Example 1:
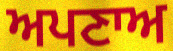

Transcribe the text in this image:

ਅਪਣਾਅ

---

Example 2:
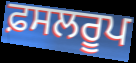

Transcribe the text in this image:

ਫ਼ਸਲਰੂਪ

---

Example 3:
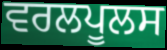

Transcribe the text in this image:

ਵਰਲਪੂਲਸ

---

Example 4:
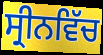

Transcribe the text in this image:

ਸ੍ਰੀਨਵਿੱਚ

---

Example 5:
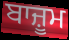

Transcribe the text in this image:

ਬਾਜ਼ੂਮ